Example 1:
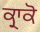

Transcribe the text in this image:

ਕ੍ਰਾਕੋ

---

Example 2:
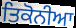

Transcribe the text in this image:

ਤਿਕੋਨੀਆ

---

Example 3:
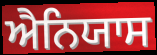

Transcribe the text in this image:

ਐਨਿਯਾਸ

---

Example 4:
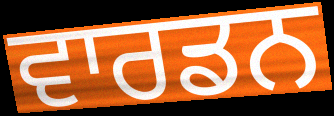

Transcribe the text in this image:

ਵਾਰਡਨ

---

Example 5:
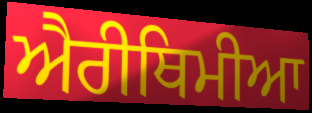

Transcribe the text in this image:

ਐਰੀਥਿਮੀਆ